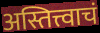
अस्तित्त्वाचं